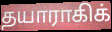
தயாராகிக்